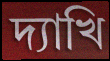
দ্যাখি